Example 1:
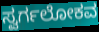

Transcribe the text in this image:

ಸ್ವರ್ಗಲೋಕವ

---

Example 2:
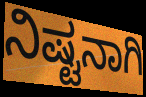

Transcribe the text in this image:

ನಿಷ್ಟನಾಗಿ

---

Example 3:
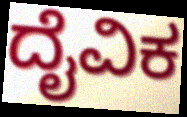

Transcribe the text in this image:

ದೈವಿಕ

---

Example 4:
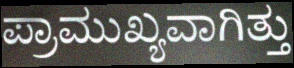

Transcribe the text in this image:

ಪ್ರಾಮುಖ್ಯವಾಗಿತ್ತು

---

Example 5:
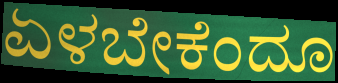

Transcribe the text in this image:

ಏಳಬೇಕೆಂದೂ